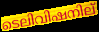
ടെലിവിഷനില്